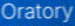
Oratory